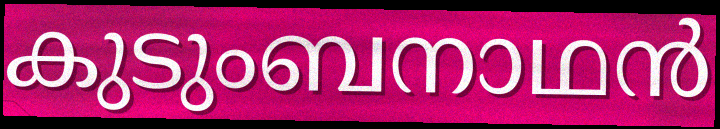
കുടുംബനാഥൻ